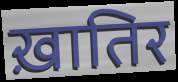
ख़ातिर